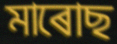
মাৰোছ